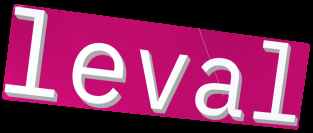
leval